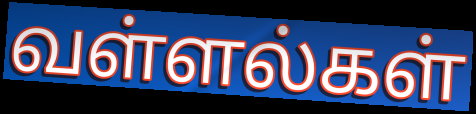
வள்ளல்கள்